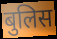
बुलिस